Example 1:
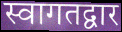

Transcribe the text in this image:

स्वागतद्वार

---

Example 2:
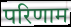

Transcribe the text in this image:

परिणाम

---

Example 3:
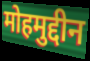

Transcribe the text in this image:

मोहमुद्दीन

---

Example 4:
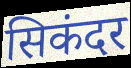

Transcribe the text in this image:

सिकंदर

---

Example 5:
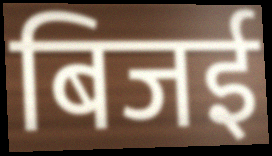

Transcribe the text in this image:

बिजई